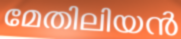
മേതിലിയൻ